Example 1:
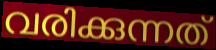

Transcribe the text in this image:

വരിക്കുന്നത്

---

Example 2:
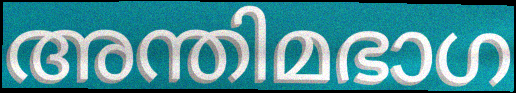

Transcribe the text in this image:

അന്തിമഭാഗ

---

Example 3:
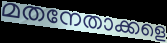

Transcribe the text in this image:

മതനേതാക്കളെ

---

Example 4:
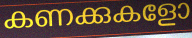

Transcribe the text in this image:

കണക്കുകളോ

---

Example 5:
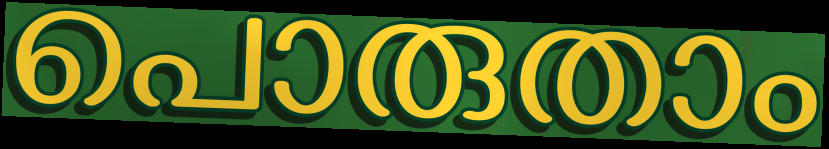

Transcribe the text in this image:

പൊരുതാം